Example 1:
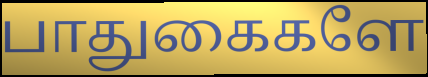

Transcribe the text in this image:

பாதுகைகளே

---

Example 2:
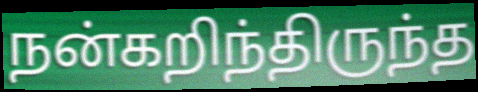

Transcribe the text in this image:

நன்கறிந்திருந்த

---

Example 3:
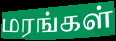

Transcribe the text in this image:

மரங்கள்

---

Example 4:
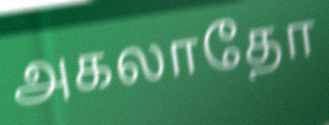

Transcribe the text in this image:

அகலாதோ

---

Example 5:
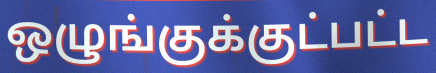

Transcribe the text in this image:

ஒழுங்குக்குட்பட்ட